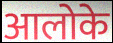
आलोके